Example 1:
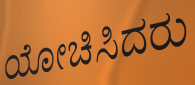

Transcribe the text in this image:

ಯೋಚಿಸಿದರು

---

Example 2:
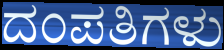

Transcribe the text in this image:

ದಂಪತಿಗಳು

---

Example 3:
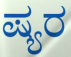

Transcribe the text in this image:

ಷ್ಯರ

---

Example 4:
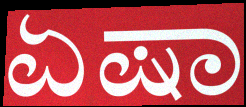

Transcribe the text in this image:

ಏಷಾ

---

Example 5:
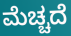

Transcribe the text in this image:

ಮೆಚ್ಚದೆ